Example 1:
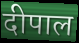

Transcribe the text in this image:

दीपाल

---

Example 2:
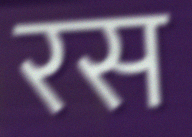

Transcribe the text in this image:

रस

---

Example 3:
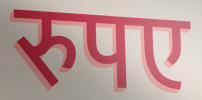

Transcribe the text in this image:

रुपए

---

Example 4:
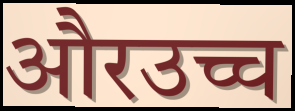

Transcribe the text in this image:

औरउच्च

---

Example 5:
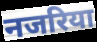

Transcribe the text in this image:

नजरिया